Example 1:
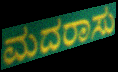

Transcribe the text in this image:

ಮದರಾಸು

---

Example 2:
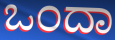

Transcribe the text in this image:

ಒಂದಾ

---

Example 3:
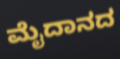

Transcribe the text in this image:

ಮೈದಾನದ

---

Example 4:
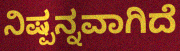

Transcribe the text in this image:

ನಿಷ್ಪನ್ನವಾಗಿದೆ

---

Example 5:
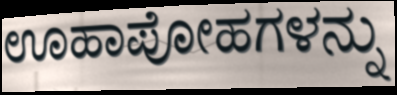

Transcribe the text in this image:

ಊಹಾಪೋಹಗಳನ್ನು